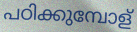
പഠിക്കുമ്പോള്